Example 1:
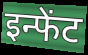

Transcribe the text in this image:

इन्फेंट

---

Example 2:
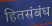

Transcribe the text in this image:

हितसंबंध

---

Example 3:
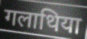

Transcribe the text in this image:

गलाथिया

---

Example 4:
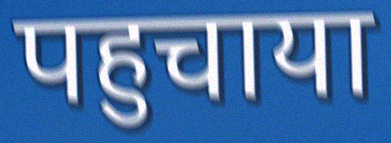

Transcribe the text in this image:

पहुचाया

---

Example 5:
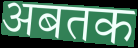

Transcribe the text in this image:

अबतक